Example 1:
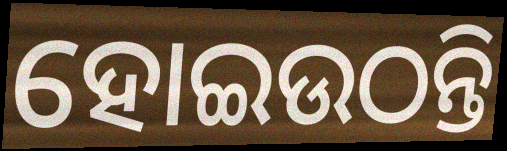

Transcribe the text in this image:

ହୋଇଉଠନ୍ତି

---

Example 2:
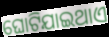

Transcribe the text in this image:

ଘୋଟିଯାଇଥାଏ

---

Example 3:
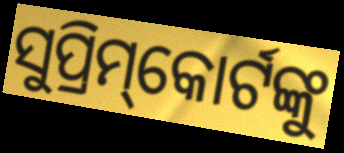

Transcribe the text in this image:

ସୁପ୍ରିମ୍‌କୋର୍ଟଙ୍କୁ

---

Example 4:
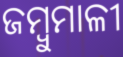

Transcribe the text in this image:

ଜମ୍ବୁମାଳୀ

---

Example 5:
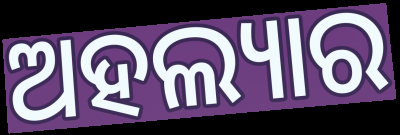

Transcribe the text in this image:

ଅହଲ୍ୟାର